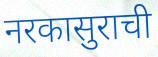
नरकासुराची